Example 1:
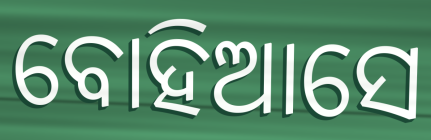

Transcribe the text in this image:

ବୋହିଆସେ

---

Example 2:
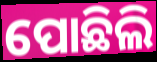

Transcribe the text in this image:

ପୋଛିଲି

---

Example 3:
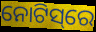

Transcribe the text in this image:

ନୋଟିସ୍‌ରେ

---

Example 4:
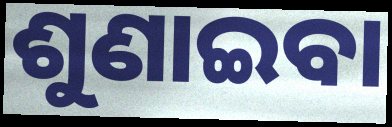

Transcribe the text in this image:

ଶୁଣାଇବା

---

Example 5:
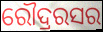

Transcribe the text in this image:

ରୌଦ୍ରରସର